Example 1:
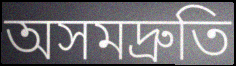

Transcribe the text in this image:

অসমদ্রুতি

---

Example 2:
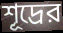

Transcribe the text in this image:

শূদ্রের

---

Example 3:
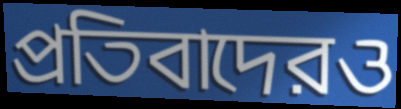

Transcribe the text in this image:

প্রতিবাদেরও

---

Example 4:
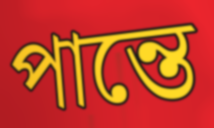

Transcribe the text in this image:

পান্তে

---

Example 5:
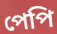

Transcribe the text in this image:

পেপি